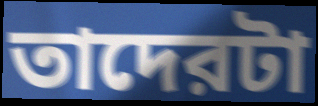
তাদেরটা